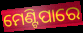
ମେଣ୍ଟିପାରେ